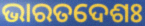
ଭାରତଦେଶଃ